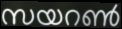
സയറൺ